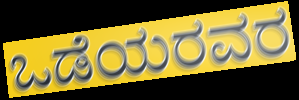
ಒಡೆಯರವರ